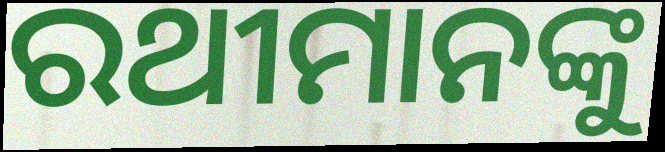
ରଥୀମାନଙ୍କୁ